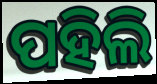
ପହିଲି